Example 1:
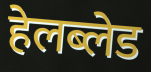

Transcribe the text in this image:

हेलब्लेड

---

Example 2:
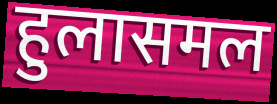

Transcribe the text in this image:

हुलासमल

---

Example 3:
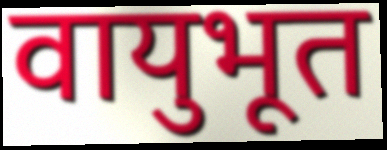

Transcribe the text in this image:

वायुभूत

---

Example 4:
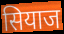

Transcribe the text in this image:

सियाज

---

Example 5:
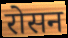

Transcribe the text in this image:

रोसन